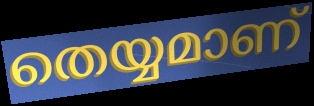
തെയ്യമാണ്